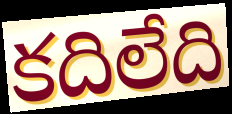
కదిలేది